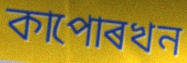
কাপোৰখন